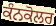
ਕੰਨਕੋਲਰ